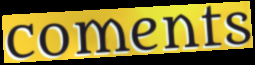
coments